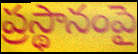
ప్రస్థానంపై